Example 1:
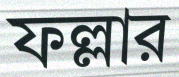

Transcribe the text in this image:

ফল্লার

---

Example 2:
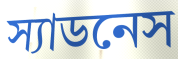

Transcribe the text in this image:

স্যাডনেস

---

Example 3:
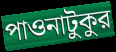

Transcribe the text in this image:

পাওনাটুকুর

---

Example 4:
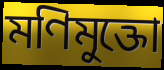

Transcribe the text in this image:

মণিমুক্তো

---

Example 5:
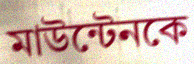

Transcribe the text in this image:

মাউন্টেনকে